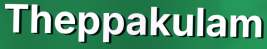
Theppakulam